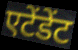
एटेंडेंट